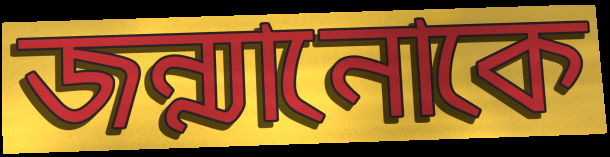
জন্মানোকে